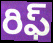
రిఫ్